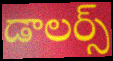
డాలర్స్